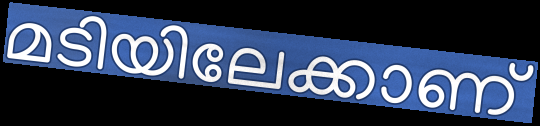
മടിയിലേക്കാണ്